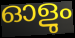
ഓളും